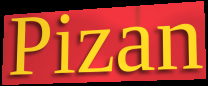
Pizan